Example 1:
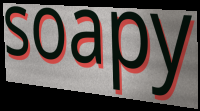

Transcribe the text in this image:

soapy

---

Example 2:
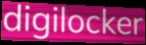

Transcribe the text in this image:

digilocker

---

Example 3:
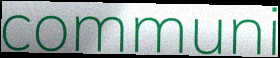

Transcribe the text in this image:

communi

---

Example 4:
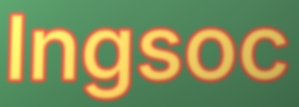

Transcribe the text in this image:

Ingsoc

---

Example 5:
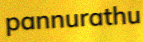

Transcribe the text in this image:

pannurathu